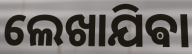
ଲେଖାଯିଵା